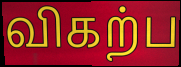
விகற்ப